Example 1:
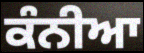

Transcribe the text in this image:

ਕੰਨੀਆ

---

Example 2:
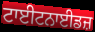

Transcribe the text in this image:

ਟਾਈਟਨਾਈਡਜ਼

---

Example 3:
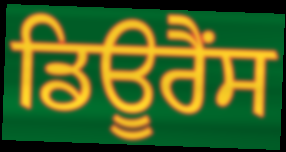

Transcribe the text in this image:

ਡਿਊਰੈਂਸ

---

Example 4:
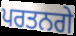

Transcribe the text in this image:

ਪਰਤਨਗੇ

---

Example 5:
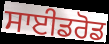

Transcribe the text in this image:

ਸਾਈਡਰੋਡ